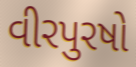
વીરપુરષો